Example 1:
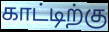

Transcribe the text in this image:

காட்டிற்கு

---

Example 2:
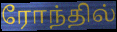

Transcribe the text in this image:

ரோந்தில்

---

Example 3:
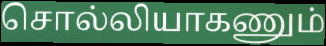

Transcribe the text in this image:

சொல்லியாகணும்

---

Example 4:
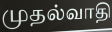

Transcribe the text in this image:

முதல்வாதி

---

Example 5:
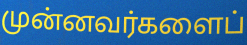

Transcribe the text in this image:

முன்னவர்களைப்